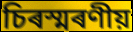
চিৰস্মৰণীয়